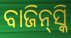
ବାଜିନ୍‌ସ୍କି